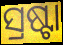
ସ୍ରଷ୍ଟା